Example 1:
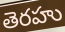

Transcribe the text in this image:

తెరహు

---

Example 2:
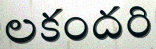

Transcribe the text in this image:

లకందరి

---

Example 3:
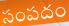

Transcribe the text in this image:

సంపదం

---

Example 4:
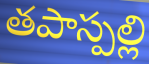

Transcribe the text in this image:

తపాస్పల్లి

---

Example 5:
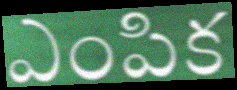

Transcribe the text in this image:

ఎంపిక